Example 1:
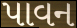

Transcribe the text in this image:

પાવન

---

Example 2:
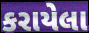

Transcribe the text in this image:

કરાયેલા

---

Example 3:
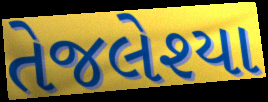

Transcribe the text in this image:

તેજલેશ્યા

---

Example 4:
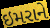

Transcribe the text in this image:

ઇમરાને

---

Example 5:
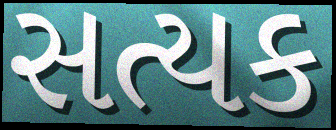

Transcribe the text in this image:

સત્યક